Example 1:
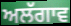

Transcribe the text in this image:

ਅਲੱਗਾਵ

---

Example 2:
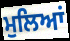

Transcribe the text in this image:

ਮੁਲਿਆਂ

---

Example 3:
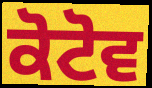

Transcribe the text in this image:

ਕੋਟੋਵ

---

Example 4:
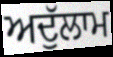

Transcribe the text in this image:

ਅਦੁੱਲਾਮ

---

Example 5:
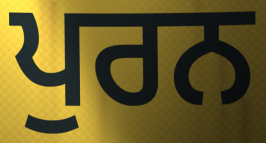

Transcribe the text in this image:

ਪੁਰਨ